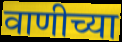
वाणीच्या